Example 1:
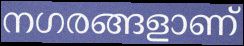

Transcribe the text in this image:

നഗരങ്ങളാണ്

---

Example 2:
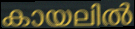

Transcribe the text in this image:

കായലിൽ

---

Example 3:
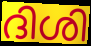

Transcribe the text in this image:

ദിശി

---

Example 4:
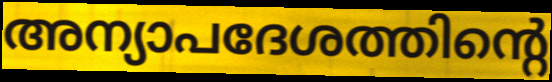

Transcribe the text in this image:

അന്യാപദേശത്തിന്റെ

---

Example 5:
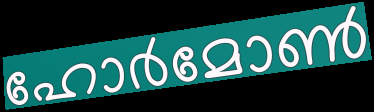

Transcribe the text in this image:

ഹോർമോൺ